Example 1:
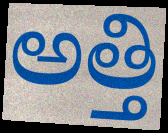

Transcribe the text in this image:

అత్తి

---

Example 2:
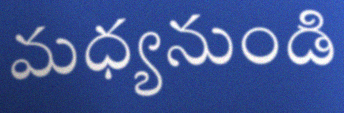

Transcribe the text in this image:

మధ్యనుండి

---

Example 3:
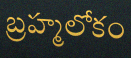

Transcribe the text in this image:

బ్రహ్మలోకం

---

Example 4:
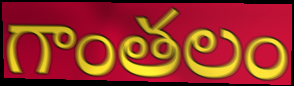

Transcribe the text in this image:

గాంతలం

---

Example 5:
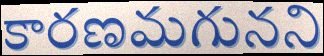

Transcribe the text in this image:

కారణమగునని